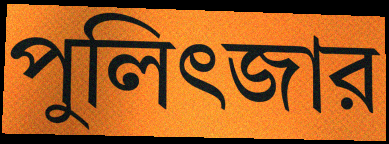
পুলিৎজার